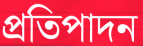
প্ৰতিপাদন